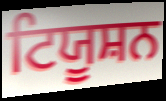
ਟਿਯੂਸ਼ਨ